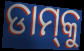
ଡାମ୍‍କୁ